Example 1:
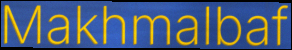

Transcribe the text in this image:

Makhmalbaf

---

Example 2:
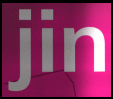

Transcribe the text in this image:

jin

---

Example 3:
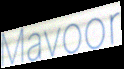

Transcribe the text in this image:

Mavoor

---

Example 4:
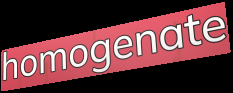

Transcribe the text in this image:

homogenate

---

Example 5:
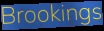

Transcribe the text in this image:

Brookings